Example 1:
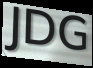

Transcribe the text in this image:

JDG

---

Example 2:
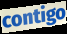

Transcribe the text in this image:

contigo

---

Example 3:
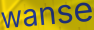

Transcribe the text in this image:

wanse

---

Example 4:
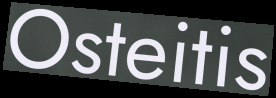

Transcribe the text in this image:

Osteitis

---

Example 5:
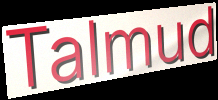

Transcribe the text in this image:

Talmud